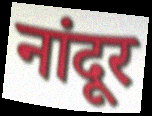
नांदूर